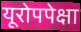
यूरोपपेक्षा